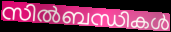
സിൽബന്ധികൾ